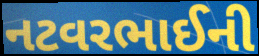
નટવરભાઈની